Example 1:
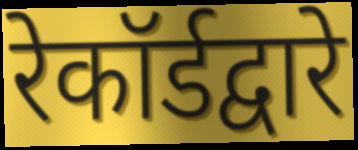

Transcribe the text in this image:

रेकॉर्डद्वारे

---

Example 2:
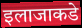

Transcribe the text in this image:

इलाजाकडे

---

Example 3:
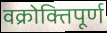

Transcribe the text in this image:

वक्रोक्तिपूर्ण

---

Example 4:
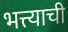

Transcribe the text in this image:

भत्त्याची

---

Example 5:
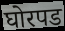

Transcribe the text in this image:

घोरपड